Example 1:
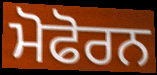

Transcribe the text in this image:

ਮੋਫੋਰਨ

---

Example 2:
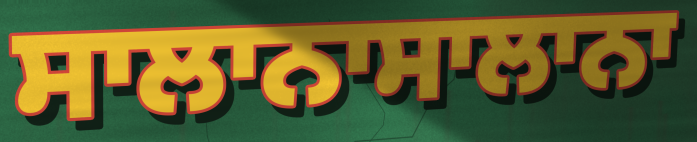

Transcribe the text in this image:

ਸਾਲਾਨਾਸਾਲਾਨਾ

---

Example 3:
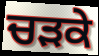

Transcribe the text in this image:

ਚੜਕੇ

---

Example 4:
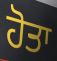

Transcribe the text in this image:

ਹੋਤਾ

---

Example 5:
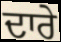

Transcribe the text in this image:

ਦਾਰੇ